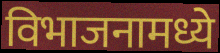
विभाजनामध्ये